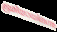
ഭൂമിയായിരുന്നു